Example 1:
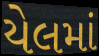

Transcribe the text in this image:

યેલમાં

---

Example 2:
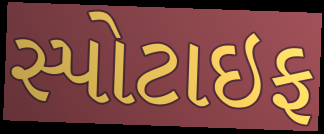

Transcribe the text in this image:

સ્પોટાઇફ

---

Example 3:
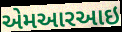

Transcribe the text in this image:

એમઆરઆઇ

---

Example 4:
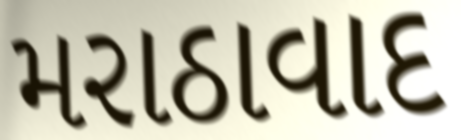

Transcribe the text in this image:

મરાઠાવાદ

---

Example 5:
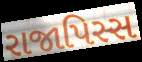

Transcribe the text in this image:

રાજાપિસ્સ